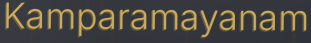
Kamparamayanam